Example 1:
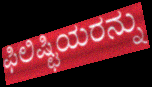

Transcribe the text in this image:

ಫಿಲಿಷ್ಟಿಯರನ್ನು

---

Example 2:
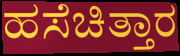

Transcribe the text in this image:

ಹಸೆಚಿತ್ತಾರ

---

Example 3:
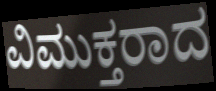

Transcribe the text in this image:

ವಿಮುಕ್ತರಾದ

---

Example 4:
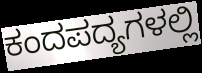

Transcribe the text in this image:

ಕಂದಪದ್ಯಗಳಲ್ಲಿ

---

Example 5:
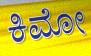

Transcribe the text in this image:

ಕಿಮೋ